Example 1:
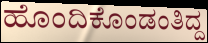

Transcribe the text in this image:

ಹೊಂದಿಕೊಂಡಂತಿದ್ದ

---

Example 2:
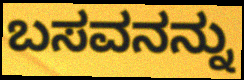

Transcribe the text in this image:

ಬಸವನನ್ನು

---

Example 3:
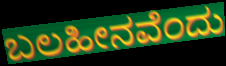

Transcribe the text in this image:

ಬಲಹೀನವೆಂದು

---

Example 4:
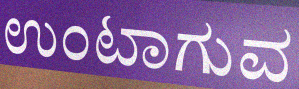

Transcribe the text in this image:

ಉಂಟಾಗುವ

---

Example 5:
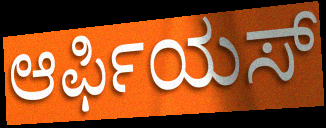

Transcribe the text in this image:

ಆರ್ಫಿಯಸ್